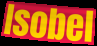
Isobel